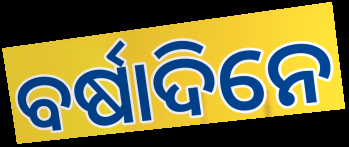
ବର୍ଷାଦିନେ